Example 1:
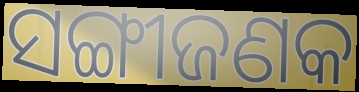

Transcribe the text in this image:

ସଙ୍ଗୀଜଣକ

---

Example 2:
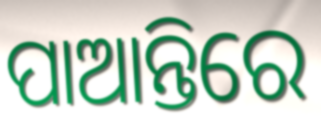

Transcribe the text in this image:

ପାଆନ୍ତିରେ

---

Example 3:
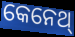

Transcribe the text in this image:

କେନେଥ୍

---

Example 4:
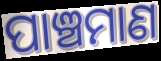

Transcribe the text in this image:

ପାଞ୍ଚମାଣ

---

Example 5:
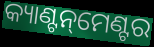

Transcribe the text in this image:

କ୍ୟାଣ୍ଟନ୍‌ମେଣ୍ଟର